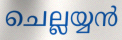
ചെല്ലയ്യൻ